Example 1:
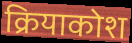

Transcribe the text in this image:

क्रियाकोश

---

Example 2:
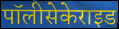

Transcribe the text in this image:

पॉलीसेकेराइड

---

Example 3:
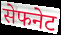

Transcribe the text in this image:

सेफनेट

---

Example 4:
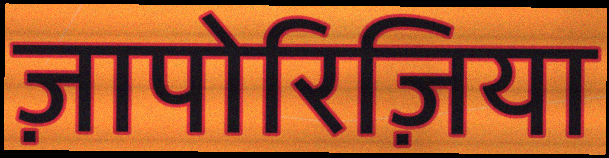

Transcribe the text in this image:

ज़ापोरिज़िया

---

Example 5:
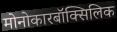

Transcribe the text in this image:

मोनोकारबॉक्सिलिक